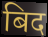
बिद